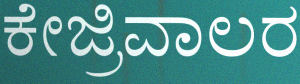
ಕೇಜ್ರಿವಾಲರ